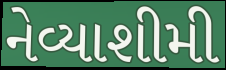
નેવ્યાશીમી